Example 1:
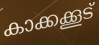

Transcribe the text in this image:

കാക്കക്കൂട്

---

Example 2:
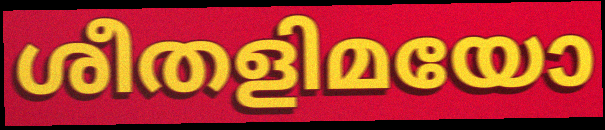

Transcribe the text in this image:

ശീതളിമയോ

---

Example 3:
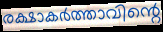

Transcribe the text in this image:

രക്ഷാകർത്താവിന്റെ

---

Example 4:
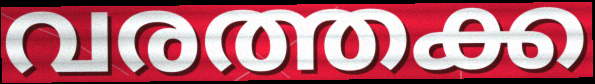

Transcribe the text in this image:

വരത്തക്ക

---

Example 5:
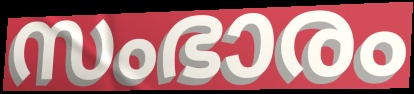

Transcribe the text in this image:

സംഭാരം